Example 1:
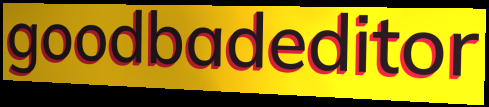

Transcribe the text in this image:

goodbadeditor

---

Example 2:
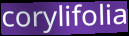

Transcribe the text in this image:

corylifolia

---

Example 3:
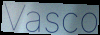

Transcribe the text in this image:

Vasco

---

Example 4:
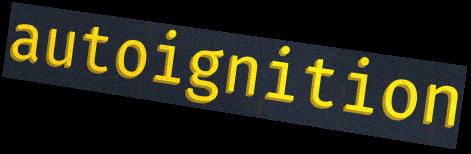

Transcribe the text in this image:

autoignition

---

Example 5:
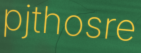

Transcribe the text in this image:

pjthosre